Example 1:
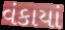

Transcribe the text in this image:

વંકાયાં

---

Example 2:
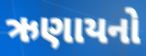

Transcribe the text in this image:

ઋણાયનો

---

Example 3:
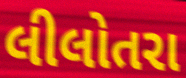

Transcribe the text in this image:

લીલોતરા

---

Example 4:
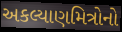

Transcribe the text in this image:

અકલ્યાણમિત્રોનો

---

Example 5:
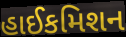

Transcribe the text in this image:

હાઈકમિશન